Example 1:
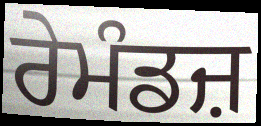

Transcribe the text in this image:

ਰੇਮੰਡਜ਼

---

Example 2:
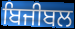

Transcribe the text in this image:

ਬਿਜੀਬਲ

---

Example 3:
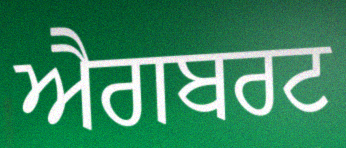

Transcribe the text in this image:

ਐਗਬਰਟ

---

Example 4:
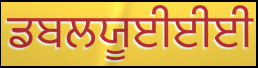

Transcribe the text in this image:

ਡਬਲਯੂਈਈਈ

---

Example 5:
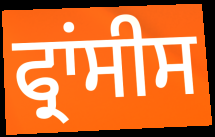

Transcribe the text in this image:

ਫ੍ਰਾਂਸੀਸ